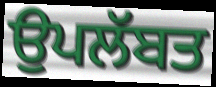
ਉਪਲੱਬਤ